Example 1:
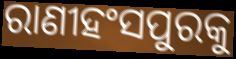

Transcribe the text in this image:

ରାଣୀହଂସପୁରକୁ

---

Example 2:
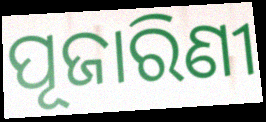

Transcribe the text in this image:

ପୂଜାରିଣୀ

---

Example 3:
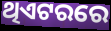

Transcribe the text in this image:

ଥିଏଟରରେ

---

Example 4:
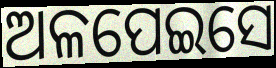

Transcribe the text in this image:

ଅଳପେଇସେ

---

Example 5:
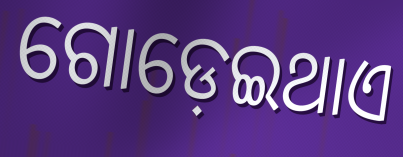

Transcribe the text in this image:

ଗୋଡ଼େଇଥାଏ